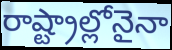
రాష్ట్రాల్లోనైనా